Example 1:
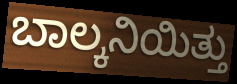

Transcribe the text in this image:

ಬಾಲ್ಕನಿಯಿತ್ತು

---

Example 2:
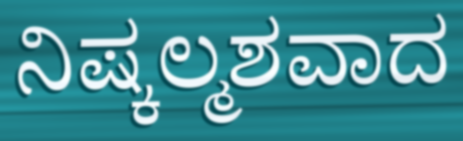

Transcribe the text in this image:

ನಿಷ್ಕಲ್ಮಶವಾದ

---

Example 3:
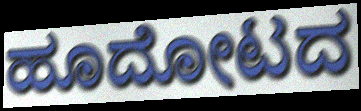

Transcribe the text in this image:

ಹೂದೋಟದ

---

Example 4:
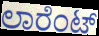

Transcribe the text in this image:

ಲಾರೆಂಟ್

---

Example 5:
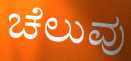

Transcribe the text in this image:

ಚೆಲುವು